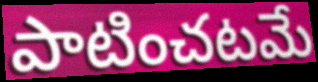
పాటించటమే